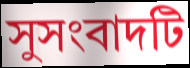
সুসংবাদটি